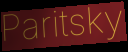
Paritsky